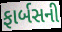
ફાર્બસની